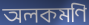
অলকমণি